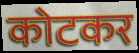
कोटकर